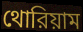
থোরিয়াম